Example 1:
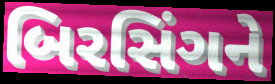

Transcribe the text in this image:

બિરસિંગને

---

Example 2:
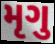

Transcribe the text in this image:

મૃગુ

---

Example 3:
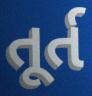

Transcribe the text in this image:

તૂર્ત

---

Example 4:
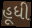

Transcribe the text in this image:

હૂધી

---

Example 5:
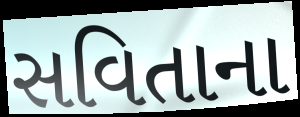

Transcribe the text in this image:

સવિતાના